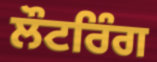
ਲੌਟਰਿੰਗ